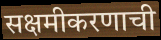
सक्षमीकरणाची